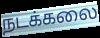
நடக்கலை